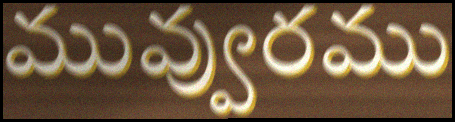
మువ్వురము